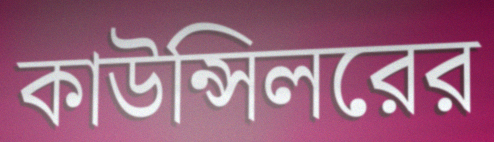
কাউন্সিলরের